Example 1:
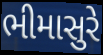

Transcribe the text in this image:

ભીમાસુરે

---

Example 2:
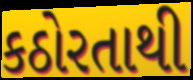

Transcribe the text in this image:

કઠોરતાથી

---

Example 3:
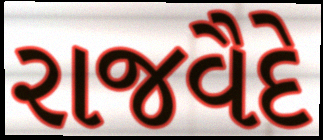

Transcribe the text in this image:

રાજવૈદે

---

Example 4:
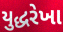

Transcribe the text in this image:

યુદ્ધરેખા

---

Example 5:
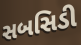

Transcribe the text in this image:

સબસિડી